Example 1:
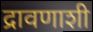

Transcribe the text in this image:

द्रावणाशी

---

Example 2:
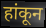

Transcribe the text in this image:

हांकून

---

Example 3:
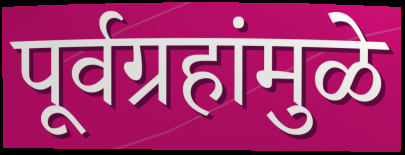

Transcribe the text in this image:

पूर्वग्रहांमुळे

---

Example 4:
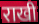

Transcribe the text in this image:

राखी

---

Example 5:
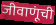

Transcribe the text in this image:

जीवाणूंची